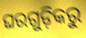
ଘରଗୁଡ଼ିକରୁ